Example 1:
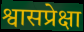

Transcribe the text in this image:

श्वासप्रेक्षा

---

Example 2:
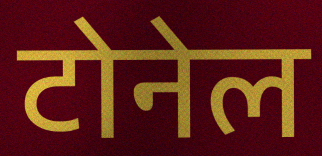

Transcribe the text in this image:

टोनेल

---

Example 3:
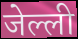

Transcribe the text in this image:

जेल्ली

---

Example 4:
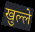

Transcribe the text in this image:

खुल्ले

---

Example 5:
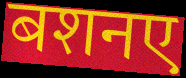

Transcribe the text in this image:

बशनए